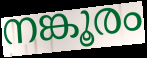
നങ്കൂരം